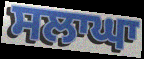
ਸਲਾਘਾ